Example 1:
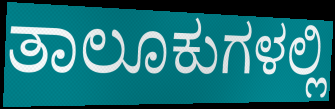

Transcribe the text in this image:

ತಾಲೂಕುಗಳಲ್ಲಿ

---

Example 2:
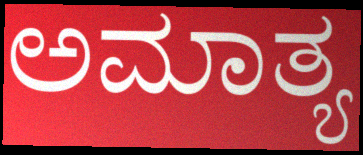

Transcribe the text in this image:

ಅಮಾತ್ಯ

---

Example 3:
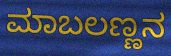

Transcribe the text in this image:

ಮಾಬಲಣ್ಣನ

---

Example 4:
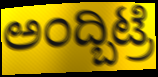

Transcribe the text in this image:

ಅಂದ್ಬಿಟ್ರೆ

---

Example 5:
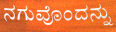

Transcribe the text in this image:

ನಗುವೊಂದನ್ನು